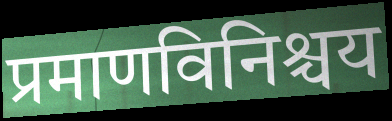
प्रमाणविनिश्चय